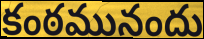
కంఠమునందు